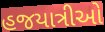
હજયાત્રીઓ